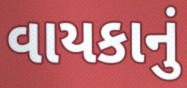
વાયકાનું